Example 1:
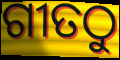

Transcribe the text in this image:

ଗୀତଠୁ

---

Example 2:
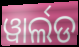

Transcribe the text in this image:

ୱାର୍ଲଡ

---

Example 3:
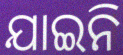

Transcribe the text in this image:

ଯାଇନି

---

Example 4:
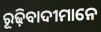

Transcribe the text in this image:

ରୂଢ଼ିବାଦୀମାନେ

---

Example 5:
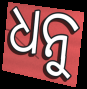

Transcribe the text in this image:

ଧନୁ